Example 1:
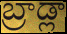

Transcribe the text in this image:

బ్రాడ్లా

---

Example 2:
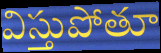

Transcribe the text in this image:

విస్తుపోతూ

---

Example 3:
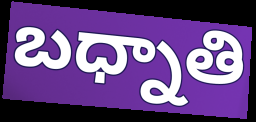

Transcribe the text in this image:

బధ్నాతి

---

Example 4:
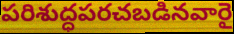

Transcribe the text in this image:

పరిశుద్ధపరచబడినవారై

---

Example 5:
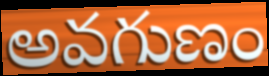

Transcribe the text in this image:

అవగుణం